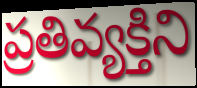
ప్రతివ్యక్తిని